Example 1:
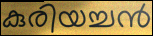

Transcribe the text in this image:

കുരിയച്ചൻ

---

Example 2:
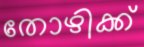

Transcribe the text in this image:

തോഴിക്ക്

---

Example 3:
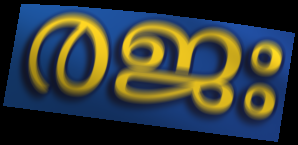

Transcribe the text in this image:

രജഃ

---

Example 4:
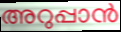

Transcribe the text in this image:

അറുപ്പാൻ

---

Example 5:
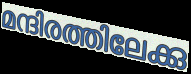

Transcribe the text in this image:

മന്ദിരത്തിലേക്കു